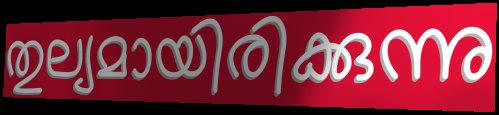
തുല്യമായിരിക്കുന്നു